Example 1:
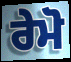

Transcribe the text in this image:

ਰੇਮੋ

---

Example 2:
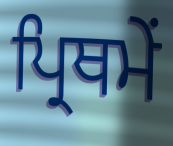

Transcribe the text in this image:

ਪ੍ਰਿਥਮੇਂ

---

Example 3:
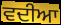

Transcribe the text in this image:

ਵਦੀਆ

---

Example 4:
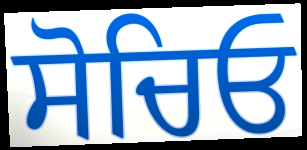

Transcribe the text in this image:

ਸੋਚਿਓ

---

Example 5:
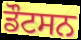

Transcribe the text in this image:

ਡੌਟਸਨ